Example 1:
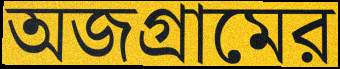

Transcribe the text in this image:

অজগ্রামের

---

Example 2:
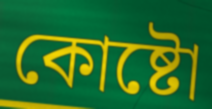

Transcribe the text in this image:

কোষ্টো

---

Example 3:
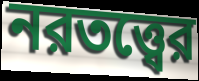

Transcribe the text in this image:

নরতত্ত্বের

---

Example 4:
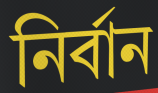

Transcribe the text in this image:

নির্বান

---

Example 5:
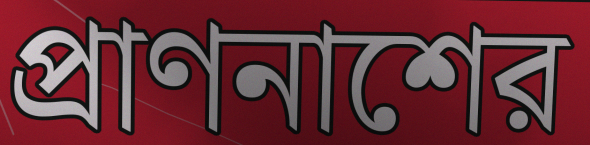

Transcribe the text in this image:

প্রাণনাশের